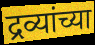
द्रव्यांच्या